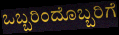
ಒಬ್ಬರಿಂದೊಬ್ಬರಿಗೆ